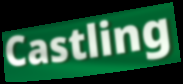
Castling